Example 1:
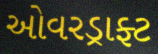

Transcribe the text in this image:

ઓવરડ્રાફ્ટ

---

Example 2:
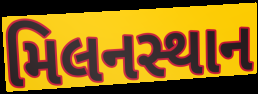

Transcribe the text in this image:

મિલનસ્થાન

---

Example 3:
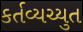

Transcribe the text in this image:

કર્તવ્યચ્યુત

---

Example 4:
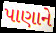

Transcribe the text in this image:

પાણાને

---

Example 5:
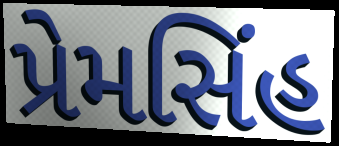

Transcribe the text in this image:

પ્રેમસિંહ